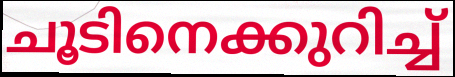
ചൂടിനെക്കുറിച്ച്